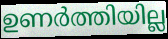
ഉണർത്തിയില്ല